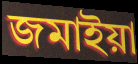
জমাইয়া